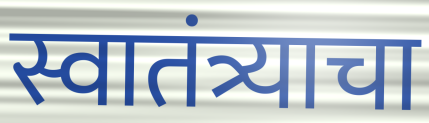
स्वातंत्र्याचा